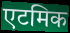
एटमिक